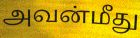
அவன்மீது